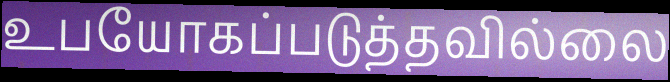
உபயோகப்படுத்தவில்லை